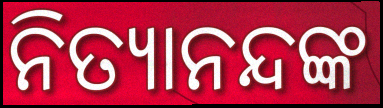
ନିତ୍ୟାନନ୍ଦଙ୍କ